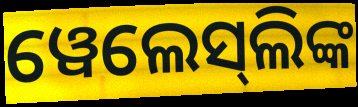
ୱେଲେସ୍‌ଲିଙ୍କ